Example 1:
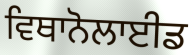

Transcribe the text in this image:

ਵਿਥਾਨੋਲਾਈਡ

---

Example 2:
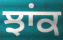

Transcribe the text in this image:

ਝਾਂਕ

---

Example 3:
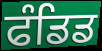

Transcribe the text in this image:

ਫੰਡਿਡ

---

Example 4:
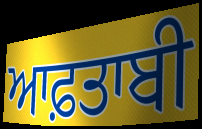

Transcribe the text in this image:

ਆਫ਼ਤਾਬੀ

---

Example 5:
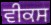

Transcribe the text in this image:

ਵੀਕਸ